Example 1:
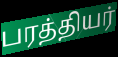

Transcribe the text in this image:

பரத்தியர்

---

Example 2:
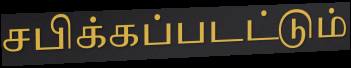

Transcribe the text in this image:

சபிக்கப்படட்டும்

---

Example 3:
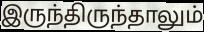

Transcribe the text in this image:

இருந்திருந்தாலும்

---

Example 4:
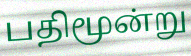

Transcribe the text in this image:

பதிமூன்று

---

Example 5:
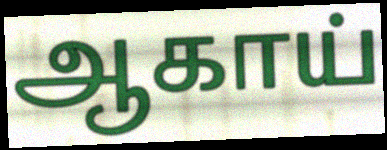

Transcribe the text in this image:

ஆகாய்